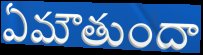
ఏమౌతుందా